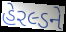
હેરલ્ડને